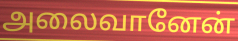
அலைவானேன்